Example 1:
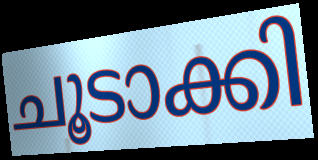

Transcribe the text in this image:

ചൂടാക്കി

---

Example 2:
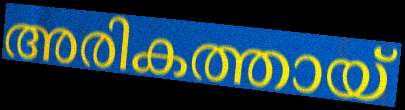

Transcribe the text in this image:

അരികത്തായ്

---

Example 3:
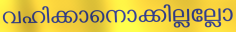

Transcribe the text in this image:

വഹിക്കാനൊക്കില്ലല്ലോ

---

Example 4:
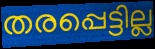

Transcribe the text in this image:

തരപ്പെട്ടില്ല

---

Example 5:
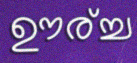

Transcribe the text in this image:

ഊര്ച്ച